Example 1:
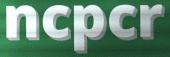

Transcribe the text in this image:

ncpcr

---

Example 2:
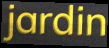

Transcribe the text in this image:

jardin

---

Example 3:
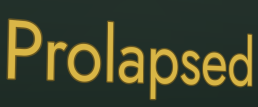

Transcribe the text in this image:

Prolapsed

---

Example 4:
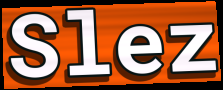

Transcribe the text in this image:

Slez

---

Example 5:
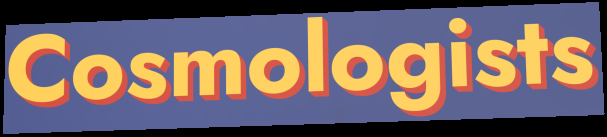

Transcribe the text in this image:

Cosmologists